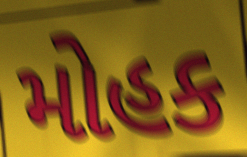
મોહક